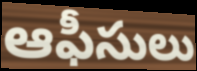
ఆఫీసులు